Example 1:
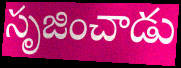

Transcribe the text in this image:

సృజించాడు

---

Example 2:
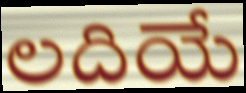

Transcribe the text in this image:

లదియే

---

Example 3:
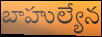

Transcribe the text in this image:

బాహుల్యేన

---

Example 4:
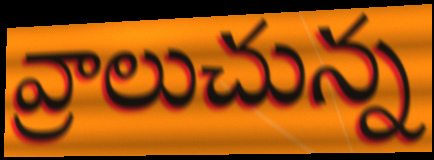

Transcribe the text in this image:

వ్రాలుచున్న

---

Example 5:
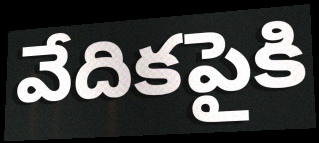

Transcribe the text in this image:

వేదికపైకి